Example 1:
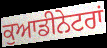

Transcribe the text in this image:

ਕੁਆਡੀਨੇਟਰਾਂ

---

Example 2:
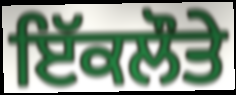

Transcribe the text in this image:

ਇੱਕਲੌਤੇ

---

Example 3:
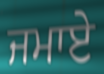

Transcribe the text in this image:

ਜਮਾਏ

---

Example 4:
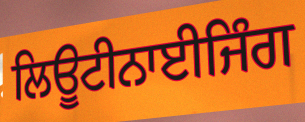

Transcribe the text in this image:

ਲਿਊਟੀਨਾਈਜਿੰਗ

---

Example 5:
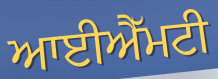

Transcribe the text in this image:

ਆਈਐੱਮਟੀ